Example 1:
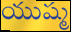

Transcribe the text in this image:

యుష్మ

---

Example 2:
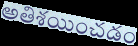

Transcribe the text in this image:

అతిశయించడం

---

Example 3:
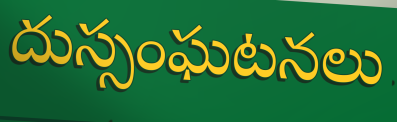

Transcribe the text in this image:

దుస్సంఘటనలు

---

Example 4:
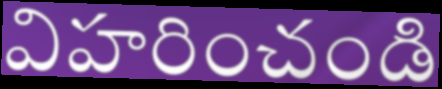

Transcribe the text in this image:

విహరించండి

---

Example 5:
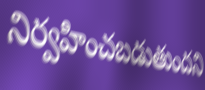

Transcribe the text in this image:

నిర్వహించబడుతుందని